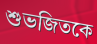
শুভজিতকে